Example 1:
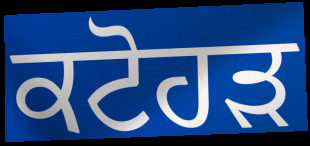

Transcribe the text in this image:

ਕਟੋਹੜ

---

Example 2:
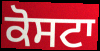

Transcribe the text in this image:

ਕੋਸਟਾ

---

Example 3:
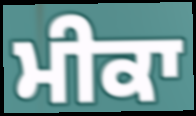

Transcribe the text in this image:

ਮੀਕਾ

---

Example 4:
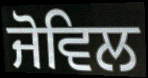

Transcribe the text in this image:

ਜੋਵਿਲ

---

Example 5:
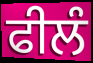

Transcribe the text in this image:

ਫੀਲੰ